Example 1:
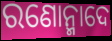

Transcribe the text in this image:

ରଣୋନ୍ମାଦେ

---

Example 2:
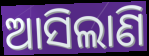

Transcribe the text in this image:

ଆସିଲାଣି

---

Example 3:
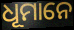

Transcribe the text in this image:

ଧୂମାନେ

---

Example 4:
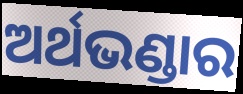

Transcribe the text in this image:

ଅର୍ଥଭଣ୍ଡାର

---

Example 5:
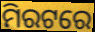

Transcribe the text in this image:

ମିରଟରେ